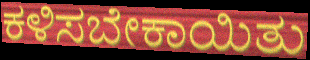
ಕಳಿಸಬೇಕಾಯಿತು